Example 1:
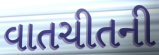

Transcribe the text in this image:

વાતચીતની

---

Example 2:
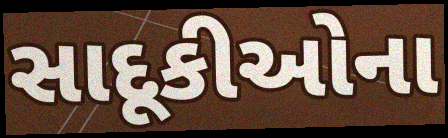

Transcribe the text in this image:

સાદૂકીઓના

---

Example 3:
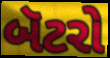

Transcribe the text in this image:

બૅટરો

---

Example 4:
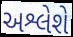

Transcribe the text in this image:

અશ્લેશે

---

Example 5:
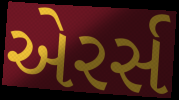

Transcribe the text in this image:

એરર્સ